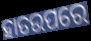
ହାତଉପରେ